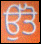
ਉੱਤੋ